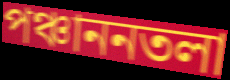
পঞ্চাননতলা